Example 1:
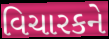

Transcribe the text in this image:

વિચારકને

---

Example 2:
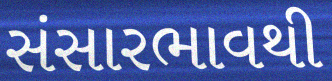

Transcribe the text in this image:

સંસારભાવથી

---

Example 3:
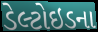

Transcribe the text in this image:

ડેલ્ટોઇડના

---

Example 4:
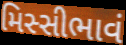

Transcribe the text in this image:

મિસ્સીભાવં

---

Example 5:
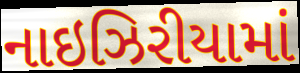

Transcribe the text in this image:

નાઇઝિરીયામાં